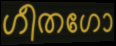
ഗീതഗോ